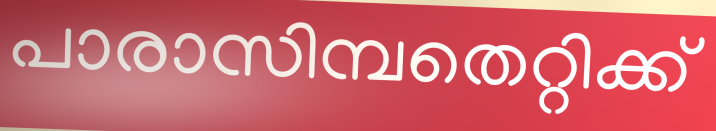
പാരാസിമ്പതെറ്റിക്ക്